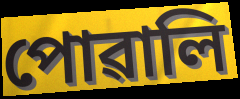
পোৱালি